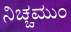
ನಿಚ್ಚಮುಂ